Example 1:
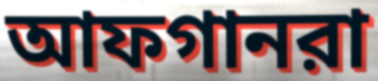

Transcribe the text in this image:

আফগানরা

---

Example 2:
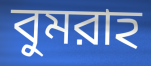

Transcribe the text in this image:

বুমরাহ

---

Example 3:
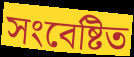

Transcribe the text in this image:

সংবেষ্টিত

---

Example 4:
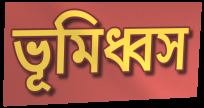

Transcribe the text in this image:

ভূমিধ্বস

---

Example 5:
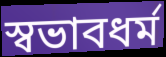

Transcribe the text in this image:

স্বভাবধর্ম